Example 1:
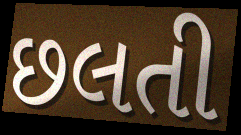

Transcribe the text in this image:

છલતી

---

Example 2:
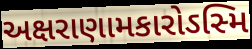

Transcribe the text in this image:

અક્ષરાણામકારોઽસ્મિ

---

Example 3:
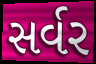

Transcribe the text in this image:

સર્વર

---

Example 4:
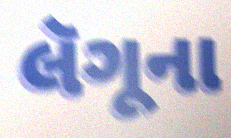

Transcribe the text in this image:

લૅગૂના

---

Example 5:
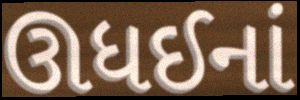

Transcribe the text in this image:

ઊધઈનાં